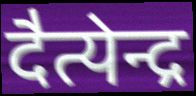
दैत्येन्द्र